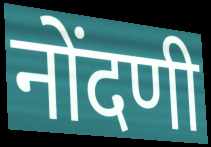
नोंदणी